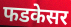
फडकेसर